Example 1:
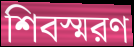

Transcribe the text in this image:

শিবস্মরণ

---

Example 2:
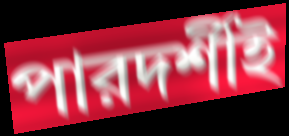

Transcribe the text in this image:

পারদর্শীই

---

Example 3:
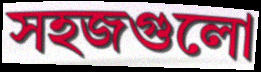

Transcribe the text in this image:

সহজগুলো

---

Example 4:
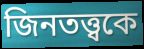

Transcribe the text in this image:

জিনতত্ত্বকে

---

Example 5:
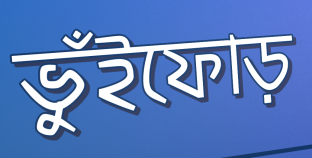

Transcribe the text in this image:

ভুঁইফোড়